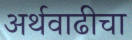
अर्थवाढीचा